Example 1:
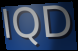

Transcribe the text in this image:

IQD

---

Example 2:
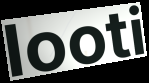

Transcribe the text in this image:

looti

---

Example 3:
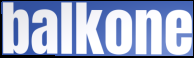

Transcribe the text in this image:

balkone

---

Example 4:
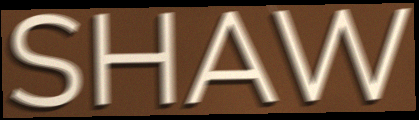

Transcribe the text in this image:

SHAW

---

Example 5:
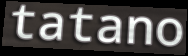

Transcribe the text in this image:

tatano